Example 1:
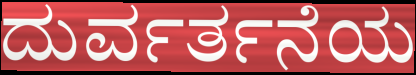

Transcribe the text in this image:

ದುರ್ವರ್ತನೆಯ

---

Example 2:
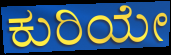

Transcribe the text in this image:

ಕುರಿಯೇ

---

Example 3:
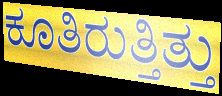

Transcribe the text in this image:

ಕೂತಿರುತ್ತಿತ್ತು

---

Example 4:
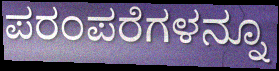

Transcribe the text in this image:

ಪರಂಪರೆಗಳನ್ನೂ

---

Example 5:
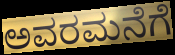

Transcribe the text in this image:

ಅವರಮನೆಗೆ